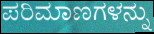
ಪರಿಮಾಣಗಳನ್ನು